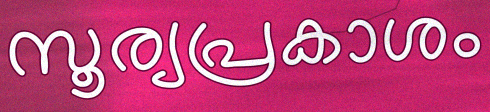
സൂര്യപ്രകാശം